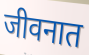
जीवनात